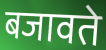
बजावते